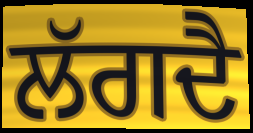
ਲੱਗਦੈ